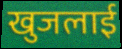
खुजलाई